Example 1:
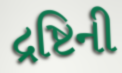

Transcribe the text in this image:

દ્રષ્ટિની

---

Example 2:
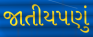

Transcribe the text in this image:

જાતીયપણું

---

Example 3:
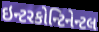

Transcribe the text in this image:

ઇન્ટરકોન્ટિનેન્ટલ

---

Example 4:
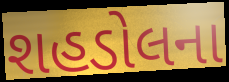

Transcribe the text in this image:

શહડોલના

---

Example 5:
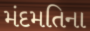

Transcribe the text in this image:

મંદમતિના